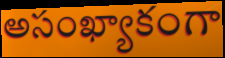
అసంఖ్యాకంగా